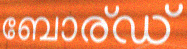
ബോര്ഡ്